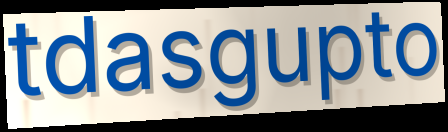
tdasgupto